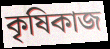
কৃষিকাজ